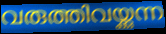
വരുത്തിവയ്ക്കുന്ന